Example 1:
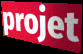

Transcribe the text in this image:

projet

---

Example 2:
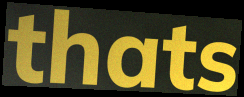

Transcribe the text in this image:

thats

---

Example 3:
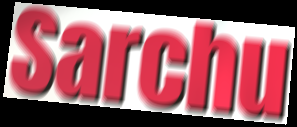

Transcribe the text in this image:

Sarchu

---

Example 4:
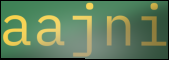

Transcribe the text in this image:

aajni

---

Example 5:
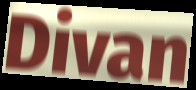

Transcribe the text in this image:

Divan